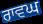
ਰਾਵਘ